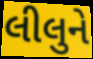
લીલુને